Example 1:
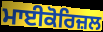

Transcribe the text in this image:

ਮਾਈਕੋਰਿਜ਼ਲ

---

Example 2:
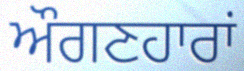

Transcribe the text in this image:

ਔਗਣਹਾਰਾਂ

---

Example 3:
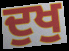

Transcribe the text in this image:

ਦੁਖੁ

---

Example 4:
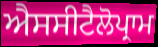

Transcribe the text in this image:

ਐਸਸੀਟੈਲੋਪ੍ਰਾਮ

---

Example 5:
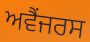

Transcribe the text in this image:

ਅਵੈਂਜਰਸ